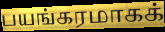
பயங்கரமாகக்